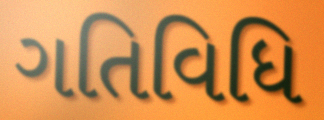
ગતિવિધિ